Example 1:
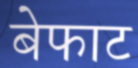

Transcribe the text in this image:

बेफाट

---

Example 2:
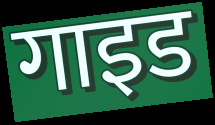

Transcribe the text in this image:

गाइड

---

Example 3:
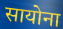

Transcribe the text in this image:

सायोना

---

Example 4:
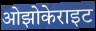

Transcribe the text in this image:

ओझोकेराइट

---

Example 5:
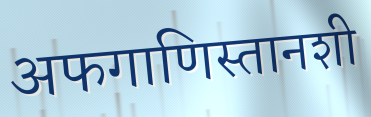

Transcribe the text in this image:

अफगाणिस्तानशी